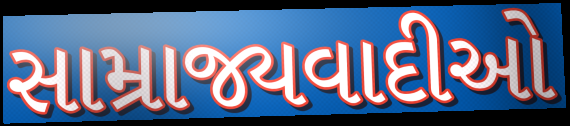
સામ્રાજ્યવાદીઓ